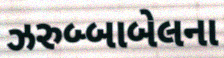
ઝરુબ્બાબેલના